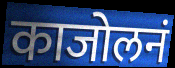
काजोलनं